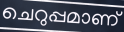
ചെറുപ്പമാണ്